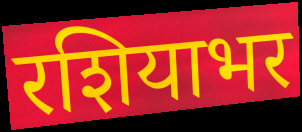
रशियाभर